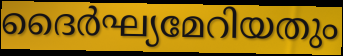
ദൈർഘ്യമേറിയതും